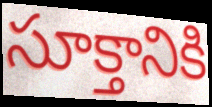
సూక్తానికి